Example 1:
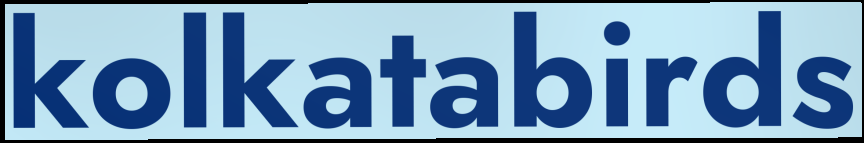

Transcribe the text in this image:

kolkatabirds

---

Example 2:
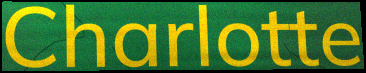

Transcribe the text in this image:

Charlotte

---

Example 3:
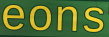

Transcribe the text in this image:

eons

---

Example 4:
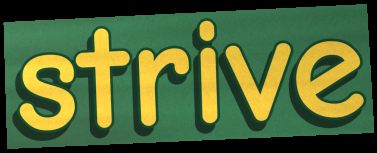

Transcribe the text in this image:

strive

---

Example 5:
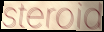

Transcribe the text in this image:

steroid